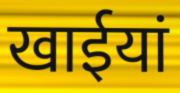
खाईयां